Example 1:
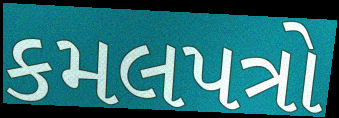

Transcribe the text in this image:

કમલપત્રો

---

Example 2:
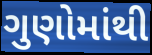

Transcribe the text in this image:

ગુણોમાંથી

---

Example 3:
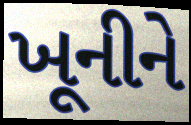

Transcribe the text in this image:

ખૂનીને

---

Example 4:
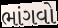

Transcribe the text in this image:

ભાંગવો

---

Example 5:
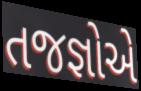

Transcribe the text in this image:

તજજ્ઞોએ